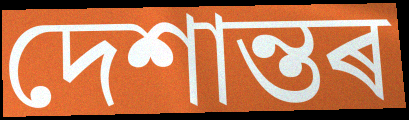
দেশান্তৰ